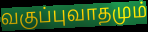
வகுப்புவாதமும்